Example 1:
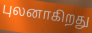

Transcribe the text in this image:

புலனாகிறது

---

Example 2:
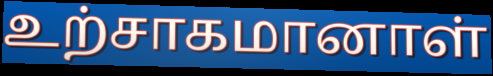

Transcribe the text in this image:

உற்சாகமானாள்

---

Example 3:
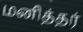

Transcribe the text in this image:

மனித்தர்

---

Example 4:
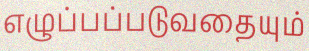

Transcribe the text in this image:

எழுப்பப்படுவதையும்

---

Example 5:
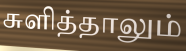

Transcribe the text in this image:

சுளித்தாலும்